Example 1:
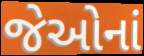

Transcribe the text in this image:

જેઓનાં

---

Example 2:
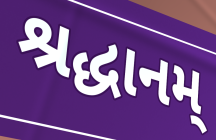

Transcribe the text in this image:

શ્રદ્ધાનમ્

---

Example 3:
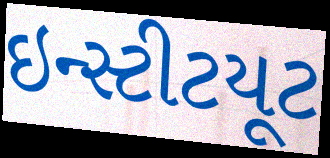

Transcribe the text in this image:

ઇન્સ્ટીટયૂટ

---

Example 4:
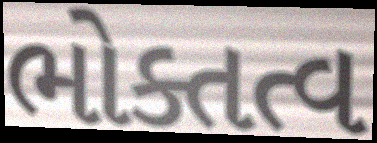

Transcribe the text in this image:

ભોક્તત્વ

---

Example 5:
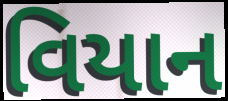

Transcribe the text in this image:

વિયાન